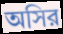
অসির